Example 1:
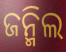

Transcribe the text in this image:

ଜନ୍ମିଲ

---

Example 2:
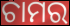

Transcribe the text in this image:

ଚାମର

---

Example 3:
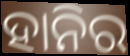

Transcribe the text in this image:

ହାନିର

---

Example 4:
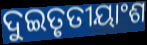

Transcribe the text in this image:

ଦୁଇତୃତୀୟାଂଶ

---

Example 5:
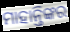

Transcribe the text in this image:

ମାହାନ୍ତିଙ୍କର